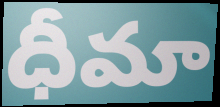
ధీమా